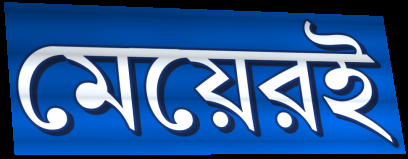
মেয়েরই